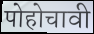
पोहोचावी